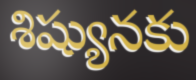
శిష్యునకు